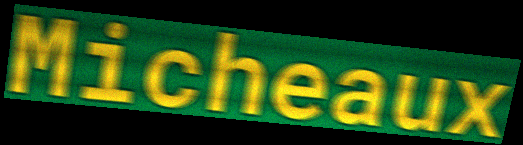
Micheaux